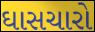
ઘાસચારો